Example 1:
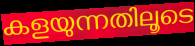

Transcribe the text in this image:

കളയുന്നതിലൂടെ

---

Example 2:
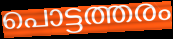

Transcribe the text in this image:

പൊട്ടത്തരം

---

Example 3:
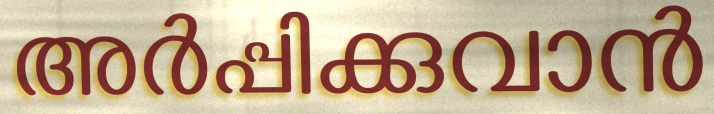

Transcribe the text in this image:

അർപ്പിക്കുവാൻ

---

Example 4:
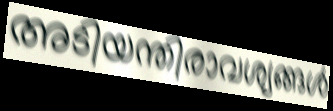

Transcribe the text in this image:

അടിയന്തിരാവശ്യങ്ങൾ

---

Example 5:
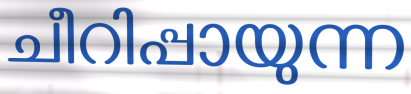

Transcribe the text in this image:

ചീറിപ്പായുന്ന